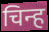
चिन्ह